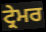
ਟ੍ਰੇਮਰ